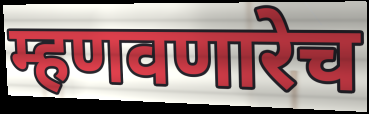
म्हणवणारेच